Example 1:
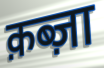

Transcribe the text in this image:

क़ब्ज़ा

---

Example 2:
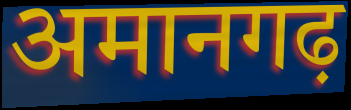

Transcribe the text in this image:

अमानगढ़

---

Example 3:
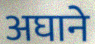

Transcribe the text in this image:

अघाने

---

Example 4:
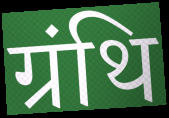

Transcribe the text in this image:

ग्रंथि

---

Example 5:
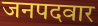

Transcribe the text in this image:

जनपदवार